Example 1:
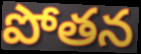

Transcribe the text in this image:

పోతన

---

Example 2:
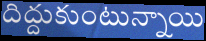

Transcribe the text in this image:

దిద్దుకుంటున్నాయి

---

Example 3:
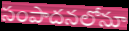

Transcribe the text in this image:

సంపాదనలోనూ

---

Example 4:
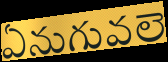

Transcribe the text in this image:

ఏనుగువలె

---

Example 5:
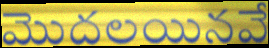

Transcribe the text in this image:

మొదలయినవే